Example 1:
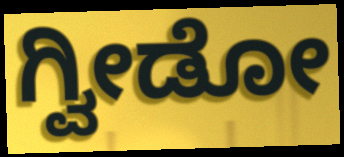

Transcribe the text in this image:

ಗ್ವೀಡೋ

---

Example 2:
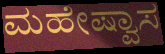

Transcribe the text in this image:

ಮಹೇಷ್ವಾಸ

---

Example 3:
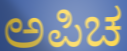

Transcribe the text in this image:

ಅಪಿಚ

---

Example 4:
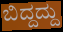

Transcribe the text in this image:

ಬಿದ್ದದ್ದು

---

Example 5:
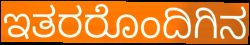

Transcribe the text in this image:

ಇತರರೊಂದಿಗಿನ